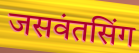
जसवंतसिंग